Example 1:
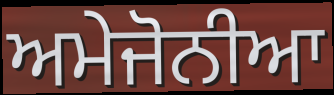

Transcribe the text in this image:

ਅਮੇਜੋਨੀਆ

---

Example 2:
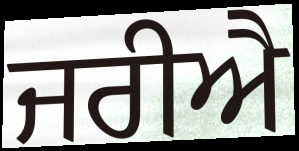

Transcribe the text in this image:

ਜਰੀਐ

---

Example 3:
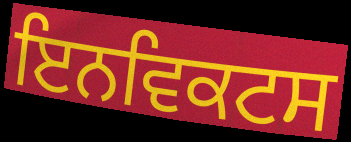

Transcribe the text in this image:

ਇਨਵਿਕਟਸ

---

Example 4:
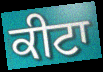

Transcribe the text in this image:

ਕੀਟਾ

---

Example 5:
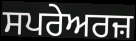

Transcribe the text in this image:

ਸਪਰੇਅਰਜ਼